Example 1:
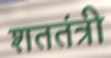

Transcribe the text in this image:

शततंत्री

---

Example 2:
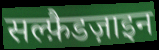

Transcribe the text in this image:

सल्फ़ैडज़ाइन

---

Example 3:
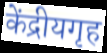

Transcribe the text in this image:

केंद्रीयगृह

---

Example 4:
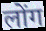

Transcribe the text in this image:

लोंग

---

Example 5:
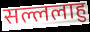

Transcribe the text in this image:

सल्ललाहु